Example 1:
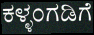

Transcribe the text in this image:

ಕಳ್ಳಂಗಡಿಗೆ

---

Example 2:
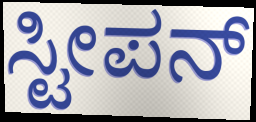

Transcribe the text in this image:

ಸ್ಟೀಪನ್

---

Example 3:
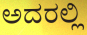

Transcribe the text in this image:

ಅದರಲ್ಲಿ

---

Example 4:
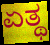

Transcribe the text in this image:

ಏತ್ಥ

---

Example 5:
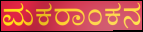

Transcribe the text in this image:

ಮಕರಾಂಕನ